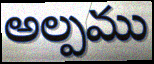
అల్పము